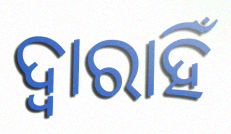
ଦ୍ୱାରାହିଁ